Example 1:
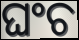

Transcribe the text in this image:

ଘଂଚ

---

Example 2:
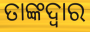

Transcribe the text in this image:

ତାଙ୍କଦ୍ୱାର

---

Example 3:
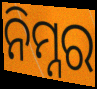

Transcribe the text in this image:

ନିମ୍ନର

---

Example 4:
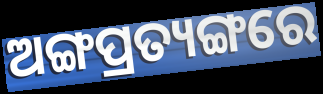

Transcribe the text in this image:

ଅଙ୍ଗପ୍ରତ୍ୟଙ୍ଗରେ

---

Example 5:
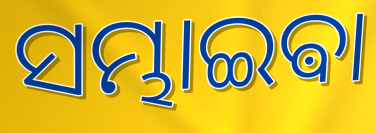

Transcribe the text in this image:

ସମ୍ଭାଇଵା